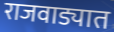
राजवाड्यात